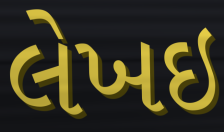
લેખઇ